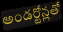
అండర్టోన్లతో